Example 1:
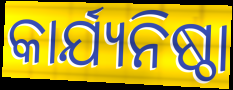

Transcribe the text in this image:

କାର୍ଯ୍ୟନିଷ୍ଠା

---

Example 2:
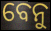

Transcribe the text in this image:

ବେନୁ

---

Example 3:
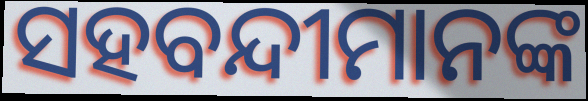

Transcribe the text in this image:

ସହବନ୍ଦୀମାନଙ୍କ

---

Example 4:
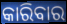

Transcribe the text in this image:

କାରିବାର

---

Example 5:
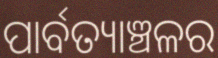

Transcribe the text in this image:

ପାର୍ବତ୍ୟାଞ୍ଚଳର